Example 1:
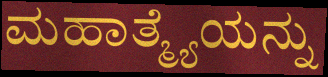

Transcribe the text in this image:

ಮಹಾತ್ಮ್ಯೆಯನ್ನು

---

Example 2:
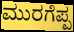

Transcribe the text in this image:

ಮುರಗೆಪ್ಪ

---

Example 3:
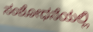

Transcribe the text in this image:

ಸಂಶೋಧನೆಯಲ್ಲಿ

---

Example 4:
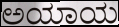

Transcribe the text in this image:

ಅಯಾಯ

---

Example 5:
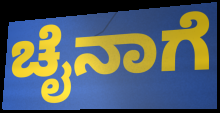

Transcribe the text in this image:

ಚೈನಾಗೆ